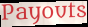
Payouts